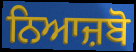
ਨਿਆਜ਼ਬੋ